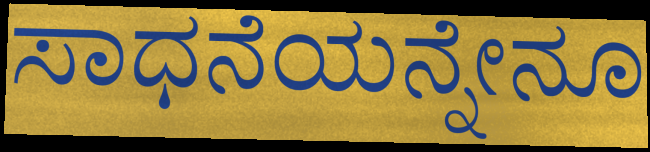
ಸಾಧನೆಯನ್ನೇನೂ